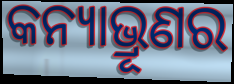
କନ୍ୟାଭ୍ରୂଣର